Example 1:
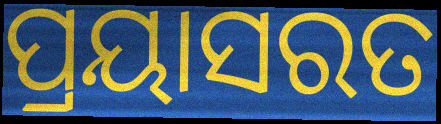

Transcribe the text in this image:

ପ୍ରୟାସରତ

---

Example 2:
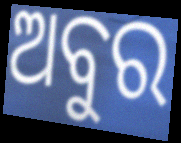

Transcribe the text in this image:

ଅବୁର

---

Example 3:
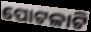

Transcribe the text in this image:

ପୋଟଳାଟି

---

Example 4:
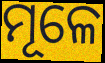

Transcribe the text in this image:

ମୂଳେ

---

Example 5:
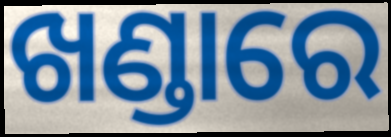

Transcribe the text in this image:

ଖଣ୍ଡାରେ